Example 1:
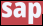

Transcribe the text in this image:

sap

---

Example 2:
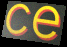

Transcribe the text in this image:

ce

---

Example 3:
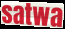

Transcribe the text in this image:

satwa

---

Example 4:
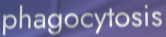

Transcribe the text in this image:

phagocytosis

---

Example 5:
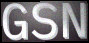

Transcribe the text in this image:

GSN